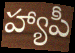
హ్యాపీ